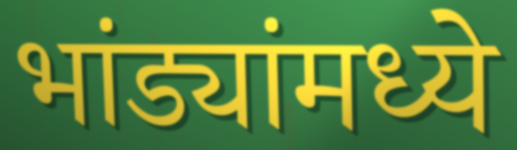
भांड्यांमध्ये